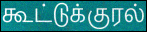
கூட்டுக்குரல்